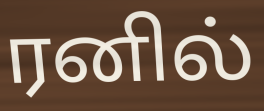
ரனில்